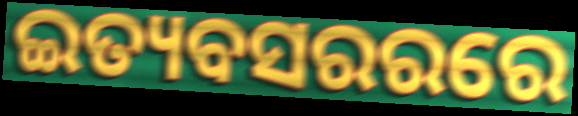
ଇତ୍ୟବସରରରେ